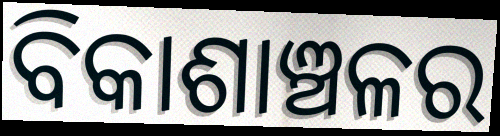
ବିକାଶାଞ୍ଚଳର